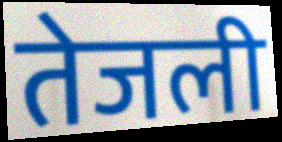
तेजली